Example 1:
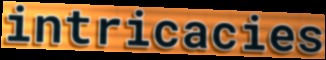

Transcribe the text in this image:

intricacies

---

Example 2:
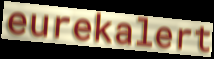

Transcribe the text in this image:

eurekalert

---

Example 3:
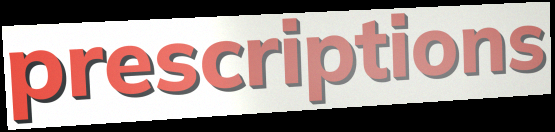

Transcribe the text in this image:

prescriptions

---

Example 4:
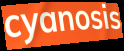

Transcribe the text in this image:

cyanosis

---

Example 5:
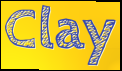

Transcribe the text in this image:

Clay